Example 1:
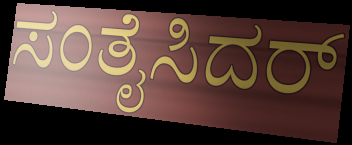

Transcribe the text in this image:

ಸಂತೈಸಿದರ್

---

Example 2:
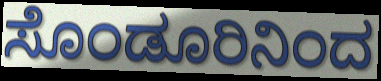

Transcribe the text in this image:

ಸೊಂಡೂರಿನಿಂದ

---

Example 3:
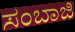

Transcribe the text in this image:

ಸಂಬಾಜಿ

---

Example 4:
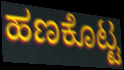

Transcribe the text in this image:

ಹಣಕೊಟ್ಟ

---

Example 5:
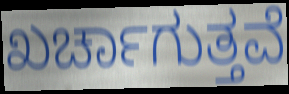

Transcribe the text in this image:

ಖರ್ಚಾಗುತ್ತವೆ